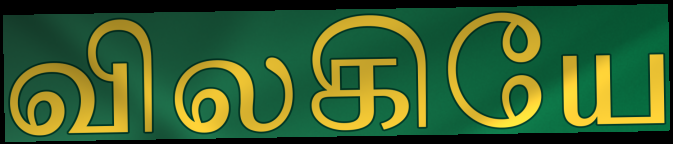
விலகியே